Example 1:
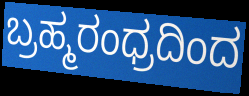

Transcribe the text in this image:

ಬ್ರಹ್ಮರಂಧ್ರದಿಂದ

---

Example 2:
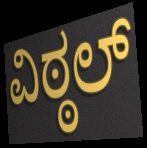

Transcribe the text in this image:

ವಿಠ್ಠಲ್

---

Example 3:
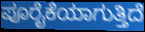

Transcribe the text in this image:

ಪೂರೈಕೆಯಾಗುತ್ತಿದೆ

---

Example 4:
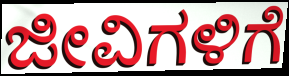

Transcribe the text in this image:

ಜೀವಿಗಳಿಗೆ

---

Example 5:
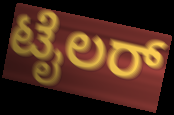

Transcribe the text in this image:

ಟೈಲರ್